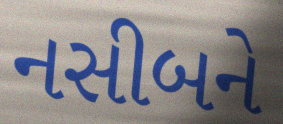
નસીબને